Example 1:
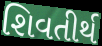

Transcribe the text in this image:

શિવતીર્થ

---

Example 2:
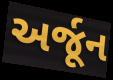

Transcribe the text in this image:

અર્જૂન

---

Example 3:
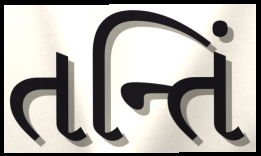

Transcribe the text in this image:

તન્તિં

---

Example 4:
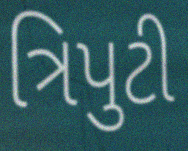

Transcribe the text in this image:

ત્રિપુટી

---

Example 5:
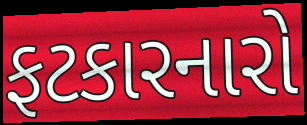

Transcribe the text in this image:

ફટકારનારો